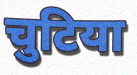
चुटिया